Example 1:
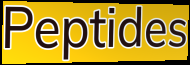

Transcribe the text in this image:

Peptides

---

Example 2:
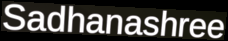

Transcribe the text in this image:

Sadhanashree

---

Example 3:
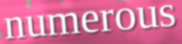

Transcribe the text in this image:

numerous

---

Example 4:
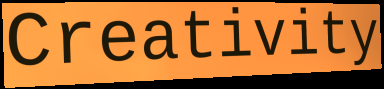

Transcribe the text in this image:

Creativity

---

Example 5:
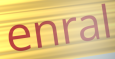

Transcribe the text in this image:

enral